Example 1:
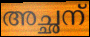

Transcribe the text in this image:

അച്ഛന്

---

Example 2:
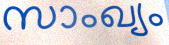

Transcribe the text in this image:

സാംഖ്യം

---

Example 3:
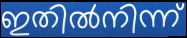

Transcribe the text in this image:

ഇതിൽനിന്ന്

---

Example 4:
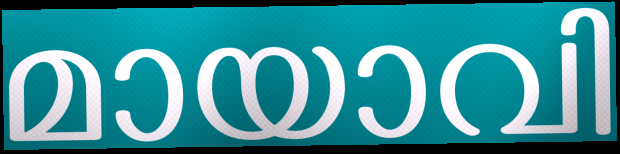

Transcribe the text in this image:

മായാവി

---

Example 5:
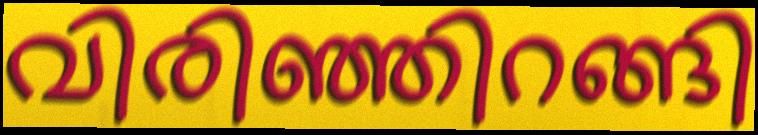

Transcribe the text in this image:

വിരിഞ്ഞിറങ്ങി